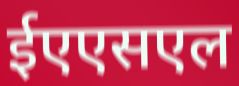
ईएएसएल